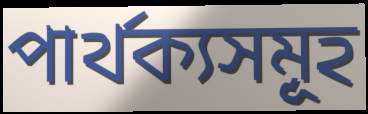
পাৰ্থক্যসমূহ